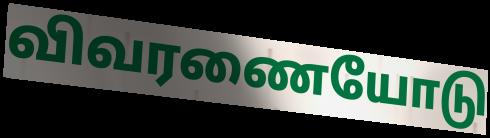
விவரணையோடு